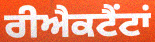
ਰੀਐਕਟੈਂਟਾਂ